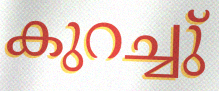
കുറച്ചു്